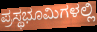
ಪ್ರಸ್ಥಭೂಮಿಗಳಲ್ಲಿ